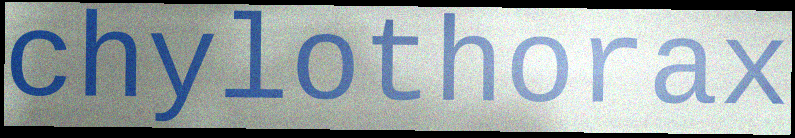
chylothorax